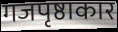
गजपृष्ठाकार